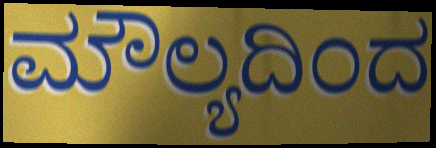
ಮೌಲ್ಯದಿಂದ